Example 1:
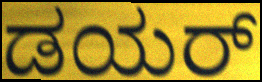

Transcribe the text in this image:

ಡಯರ್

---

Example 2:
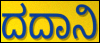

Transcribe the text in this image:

ದದಾನಿ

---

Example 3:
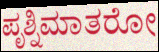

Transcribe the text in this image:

ಪೃಶ್ನಿಮಾತರೋ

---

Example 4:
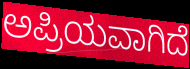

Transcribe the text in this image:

ಅಪ್ರಿಯವಾಗಿದೆ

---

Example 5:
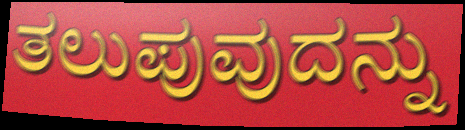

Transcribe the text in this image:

ತಲುಪುವುದನ್ನು